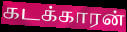
கடக்காரன்